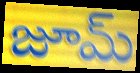
జూమ్